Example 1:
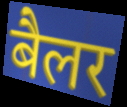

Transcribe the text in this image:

बैलर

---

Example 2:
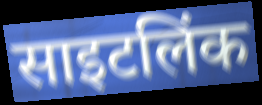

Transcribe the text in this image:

साइटलिंक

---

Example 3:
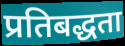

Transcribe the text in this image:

प्रतिबद्धता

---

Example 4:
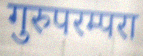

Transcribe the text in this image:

गुरुपरम्परा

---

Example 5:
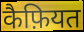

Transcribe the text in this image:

कैफ़ियत